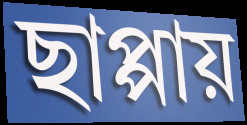
ছাপ্পায়